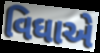
વિઘાએ